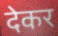
देकर